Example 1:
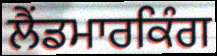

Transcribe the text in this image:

ਲੈਂਡਮਾਰਕਿੰਗ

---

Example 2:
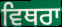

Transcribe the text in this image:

ਵਿਥਰਾ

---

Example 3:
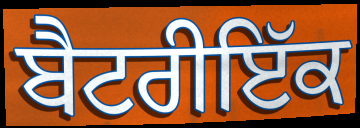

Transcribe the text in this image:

ਬੈਟਰੀਇੱਕ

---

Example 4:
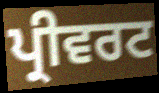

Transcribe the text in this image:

ਪ੍ਰੀਵਰਟ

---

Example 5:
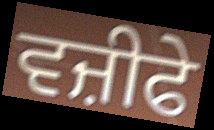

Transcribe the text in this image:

ਵਜ਼ੀਫੇ